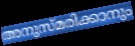
അനുസ്മരിക്കാനും